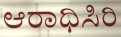
ಆರಾಧಿಸಿರಿ